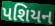
પશિયન